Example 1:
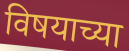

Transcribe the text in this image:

विषयाच्या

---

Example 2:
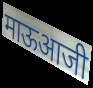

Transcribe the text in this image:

माऊआजी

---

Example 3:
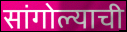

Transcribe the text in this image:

सांगोल्याची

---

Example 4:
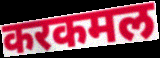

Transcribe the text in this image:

करकमल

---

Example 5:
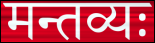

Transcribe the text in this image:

मन्तव्यः